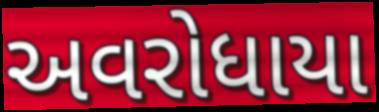
અવરોધાયા